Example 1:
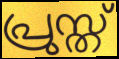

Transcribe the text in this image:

പ്രുസ്ത്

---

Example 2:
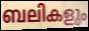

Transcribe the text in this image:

ബലികളും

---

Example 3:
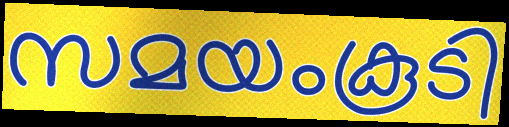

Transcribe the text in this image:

സമയംകൂടി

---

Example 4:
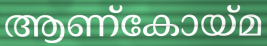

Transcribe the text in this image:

ആണ്കോയ്മ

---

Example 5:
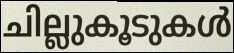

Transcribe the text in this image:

ചില്ലുകൂടുകൾ